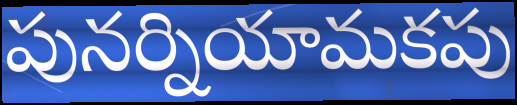
పునర్నియామకపు